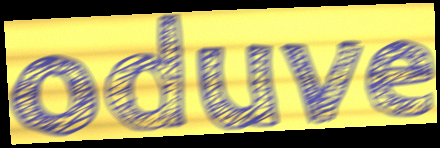
oduve